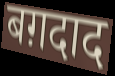
बग़दाद